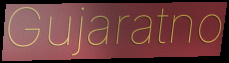
Gujaratno